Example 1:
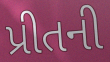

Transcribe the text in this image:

પ્રીતની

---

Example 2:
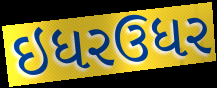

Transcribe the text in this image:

ઇધરઉધર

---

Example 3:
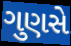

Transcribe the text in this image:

ગુણસે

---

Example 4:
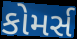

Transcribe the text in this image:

કોમર્સ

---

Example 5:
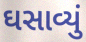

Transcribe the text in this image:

ઘસાવ્યું